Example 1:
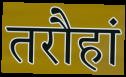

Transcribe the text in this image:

तरौहां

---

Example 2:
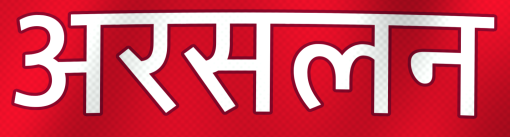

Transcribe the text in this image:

अरसलन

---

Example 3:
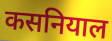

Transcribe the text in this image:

कसनियाल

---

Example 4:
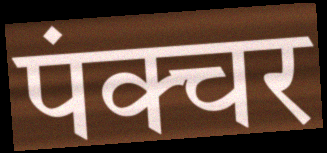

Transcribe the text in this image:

पंक्‍चर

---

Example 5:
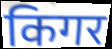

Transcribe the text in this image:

किगर